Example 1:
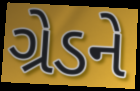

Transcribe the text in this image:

ગ્રેડને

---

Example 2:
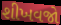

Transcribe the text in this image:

શીખવજો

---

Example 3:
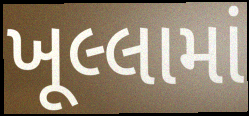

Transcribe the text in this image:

ખૂલ્લામાં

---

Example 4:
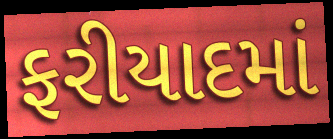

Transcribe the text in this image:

ફરીયાદમાં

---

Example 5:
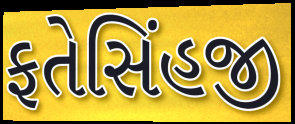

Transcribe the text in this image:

ફતેસિંહજી